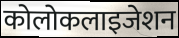
कोलोकलाइजेशन